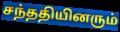
சந்ததியினரும்